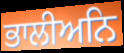
ਭਾਲੀਅਨਿ